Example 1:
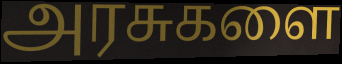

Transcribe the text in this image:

அரசுகளை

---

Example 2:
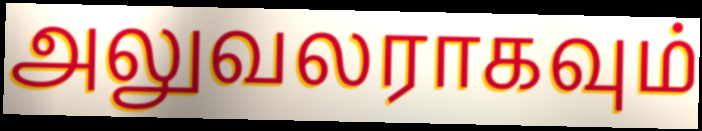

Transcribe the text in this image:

அலுவலராகவும்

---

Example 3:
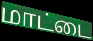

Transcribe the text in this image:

மாட்டை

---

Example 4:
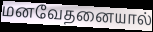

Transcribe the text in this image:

மனவேதனையால்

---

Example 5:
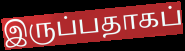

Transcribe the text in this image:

இருப்பதாகப்